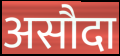
असौदा